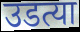
उडत्या